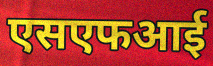
एसएफआई